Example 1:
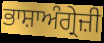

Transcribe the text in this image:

ਭਾਸ਼ਾਅੰਗ੍ਰੇਜ਼ੀ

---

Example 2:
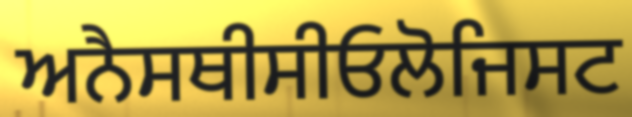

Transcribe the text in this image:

ਅਨੈਸਥੀਸੀਓਲੋਜਿਸਟ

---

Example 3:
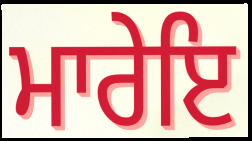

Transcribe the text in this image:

ਮਾਰੇਇ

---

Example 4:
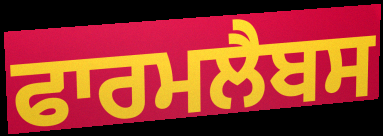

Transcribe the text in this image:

ਫਾਰਮਲੈਬਸ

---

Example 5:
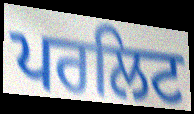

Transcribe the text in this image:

ਪਰਲਿਟ